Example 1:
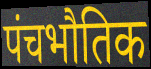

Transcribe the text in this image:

पंचभौतिक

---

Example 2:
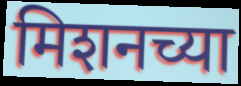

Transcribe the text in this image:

मिशनच्या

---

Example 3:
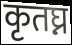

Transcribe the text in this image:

कृतघ्न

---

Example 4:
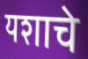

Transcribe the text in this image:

यशाचे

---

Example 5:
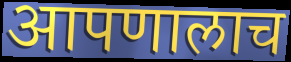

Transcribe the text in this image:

आपणालाच